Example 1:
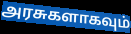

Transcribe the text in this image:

அரசுகளாகவும்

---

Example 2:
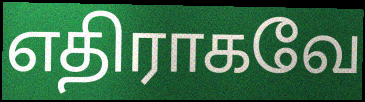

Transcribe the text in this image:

எதிராகவே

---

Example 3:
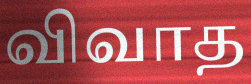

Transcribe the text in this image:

விவாத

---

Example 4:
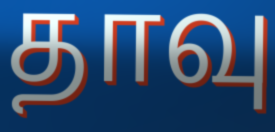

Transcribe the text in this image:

தாவு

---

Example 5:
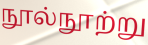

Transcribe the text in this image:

நூல்நூற்று